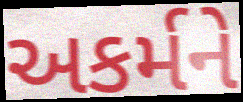
અકર્મને